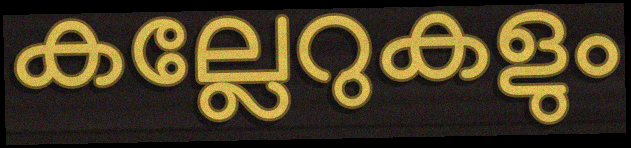
കല്ലേറുകളും